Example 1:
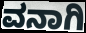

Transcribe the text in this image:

ವನಾಗಿ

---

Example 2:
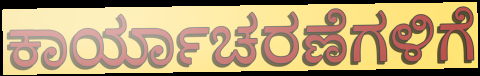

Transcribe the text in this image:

ಕಾರ್ಯಾಚರಣೆಗಳಿಗೆ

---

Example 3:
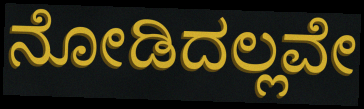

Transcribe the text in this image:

ನೋಡಿದಲ್ಲವೇ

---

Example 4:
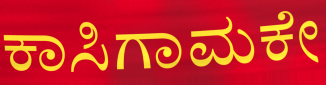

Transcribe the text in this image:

ಕಾಸಿಗಾಮಕೇ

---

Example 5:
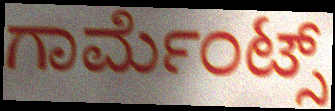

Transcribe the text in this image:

ಗಾರ್ಮೆಂಟ್ಸ್